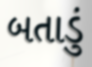
બતાડું